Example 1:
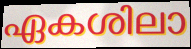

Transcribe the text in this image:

ഏകശിലാ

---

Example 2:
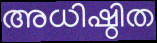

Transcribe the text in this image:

അധിഷ്ഠിത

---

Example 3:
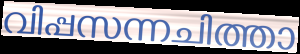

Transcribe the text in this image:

വിപ്പസന്നചിത്താ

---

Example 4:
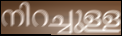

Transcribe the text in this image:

നിറച്ചുള്ള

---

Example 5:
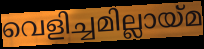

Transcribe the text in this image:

വെളിച്ചമില്ലായ്മ